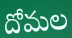
దోమల